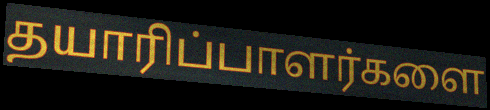
தயாரிப்பாளர்களை